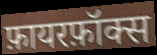
फ़ायरफ़ॉक्स